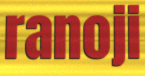
ranoji